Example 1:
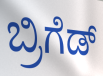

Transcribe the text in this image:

ಬ್ರಿಗೆಡ್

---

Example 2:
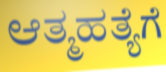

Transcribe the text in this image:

ಆತ್ಮಹತ್ಯೆಗೆ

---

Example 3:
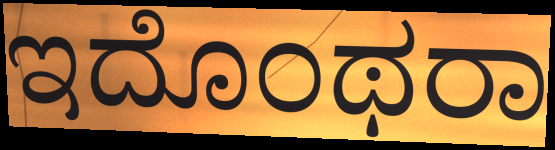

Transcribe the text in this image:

ಇದೊಂಥರಾ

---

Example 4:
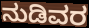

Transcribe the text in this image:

ನುಡಿವರ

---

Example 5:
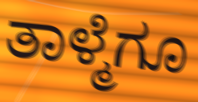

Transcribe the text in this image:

ತಾಳ್ಮೆಗೂ